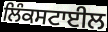
ਲਿੰਕਸਟਾਈਲ